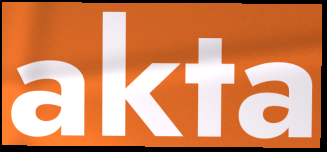
akta